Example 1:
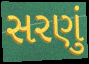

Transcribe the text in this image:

સરણું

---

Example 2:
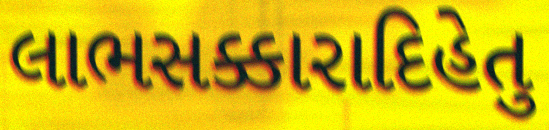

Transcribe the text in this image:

લાભસક્કારાદિહેતુ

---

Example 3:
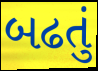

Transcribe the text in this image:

બઢતું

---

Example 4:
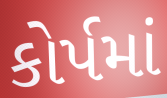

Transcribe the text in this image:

કોર્પમાં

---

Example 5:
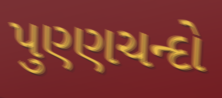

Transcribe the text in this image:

પુણ્ણચન્દો